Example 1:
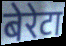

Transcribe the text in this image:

बेरेटा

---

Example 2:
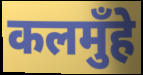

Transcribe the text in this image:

कलमुँहे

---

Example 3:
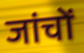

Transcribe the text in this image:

जांचों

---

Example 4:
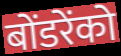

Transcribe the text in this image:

बोंडरेंको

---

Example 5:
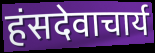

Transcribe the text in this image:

हंसदेवाचार्य